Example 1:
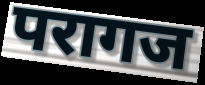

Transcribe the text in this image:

परागज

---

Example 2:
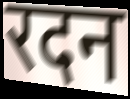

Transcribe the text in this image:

रदन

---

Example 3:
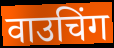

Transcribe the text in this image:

वाउचिंग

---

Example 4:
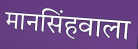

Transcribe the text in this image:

मानसिंहवाला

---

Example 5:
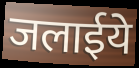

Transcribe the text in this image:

जलाईये